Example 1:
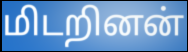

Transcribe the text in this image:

மிடறினன்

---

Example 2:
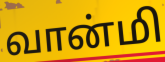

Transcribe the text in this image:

வான்மி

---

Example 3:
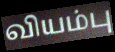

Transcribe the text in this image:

வியம்பு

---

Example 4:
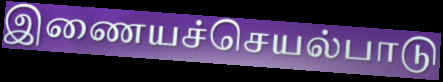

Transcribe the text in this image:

இணையச்செயல்பாடு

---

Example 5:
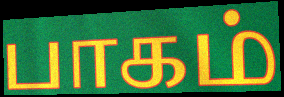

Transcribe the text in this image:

பாகம்